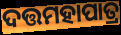
ଦତ୍ତମହାପାତ୍ର